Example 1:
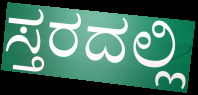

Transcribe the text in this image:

ಸ್ತರದಲ್ಲಿ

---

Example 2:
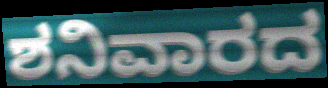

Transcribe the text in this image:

ಶನಿವಾರದ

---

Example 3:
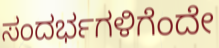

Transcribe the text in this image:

ಸಂದರ್ಭಗಳಿಗೆಂದೇ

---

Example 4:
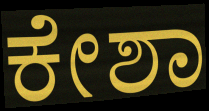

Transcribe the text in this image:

ಕೇಶಾ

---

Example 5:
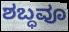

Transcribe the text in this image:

ಶಬ್ಧವೂ